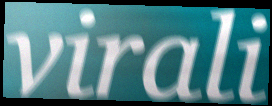
virali